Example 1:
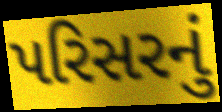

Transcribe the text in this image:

પરિસરનું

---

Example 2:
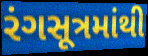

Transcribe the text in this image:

રંગસૂત્રમાંથી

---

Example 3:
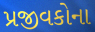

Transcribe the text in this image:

પ્રજીવકોના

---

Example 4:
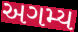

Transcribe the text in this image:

અગમ્ય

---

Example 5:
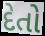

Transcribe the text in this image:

દેતો